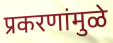
प्रकरणांमुळे